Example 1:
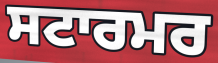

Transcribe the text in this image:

ਸਟਾਰਮਰ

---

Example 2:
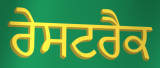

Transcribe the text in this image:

ਰੇਸਟਰੈਕ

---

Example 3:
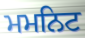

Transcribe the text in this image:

ਮਮਨਿਟ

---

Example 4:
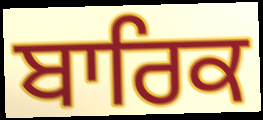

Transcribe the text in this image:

ਬਾਰਿਕ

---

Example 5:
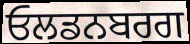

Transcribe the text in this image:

ਓਲਡਨਬਰਗ